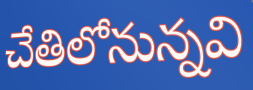
చేతిలోనున్నవి